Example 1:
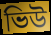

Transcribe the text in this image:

ভিউ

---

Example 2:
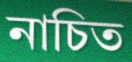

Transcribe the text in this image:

নাচিত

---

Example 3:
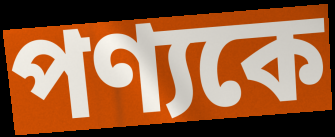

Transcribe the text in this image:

পণ্যকে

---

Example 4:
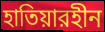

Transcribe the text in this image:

হাতিয়ারহীন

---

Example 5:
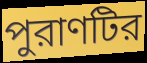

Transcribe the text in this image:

পুরাণটির